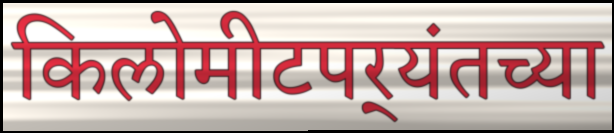
किलोमीटपर्यंतच्या